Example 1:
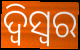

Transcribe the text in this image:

ଦ୍ଵିସ୍ଵର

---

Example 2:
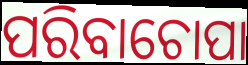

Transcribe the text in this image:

ପରିବାଚୋପା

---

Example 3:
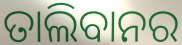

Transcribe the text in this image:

ତାଲିବାନର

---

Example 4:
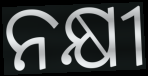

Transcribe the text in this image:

ନକ୍ଷୀ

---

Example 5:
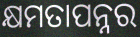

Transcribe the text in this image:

କ୍ଷମତାପନ୍ନର